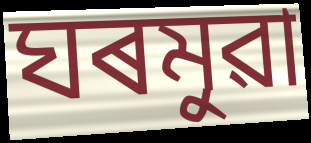
ঘৰমুৱা